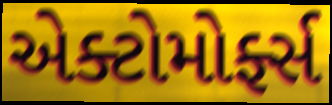
એક્ટોમોર્ફ્સ